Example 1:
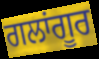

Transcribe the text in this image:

ਗਲਾਂਗੂਰ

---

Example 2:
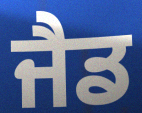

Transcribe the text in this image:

ਜੈਡ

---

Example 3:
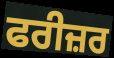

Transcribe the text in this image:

ਫਰੀਜ਼ਰ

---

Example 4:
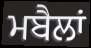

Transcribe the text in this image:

ਮਬੈਲਾਂ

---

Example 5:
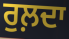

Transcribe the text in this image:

ਰੁਲ਼ਦਾ